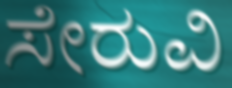
ಸೇರುವಿ